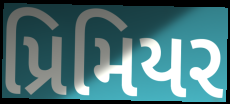
પ્રિમિયર